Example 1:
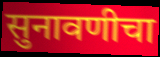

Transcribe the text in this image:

सुनावणीचा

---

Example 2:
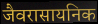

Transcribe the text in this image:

जैवरासायनिक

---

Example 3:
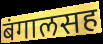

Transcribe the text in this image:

बंगालसह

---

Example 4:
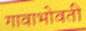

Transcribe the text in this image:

गावाभोवती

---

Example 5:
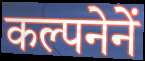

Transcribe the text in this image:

कल्पनेनें